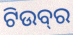
ଟିଉବ୍‍ର